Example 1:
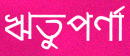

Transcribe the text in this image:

ঋতুপর্ণা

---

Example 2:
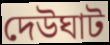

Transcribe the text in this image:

দেউঘাট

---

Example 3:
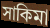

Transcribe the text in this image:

সাকিমা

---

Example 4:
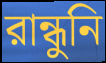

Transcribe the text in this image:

রান্ধুনি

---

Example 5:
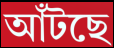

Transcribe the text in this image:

আঁটছে